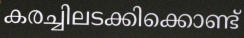
കരച്ചിലടക്കിക്കൊണ്ട്